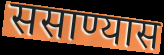
ससाण्यास